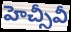
హెచ్సీవీ